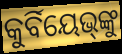
କୁର୍ବିୟେଭ୍‌ଙ୍କୁ